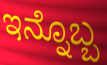
ಇನ್ನೊಬ್ಬ